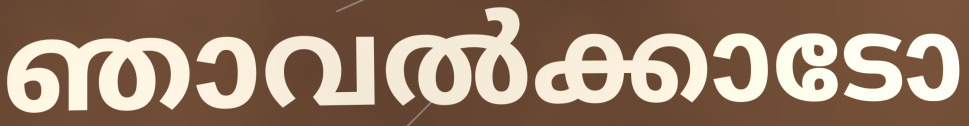
ഞാവൽക്കാടോ